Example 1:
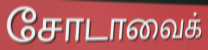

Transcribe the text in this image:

சோடாவைக்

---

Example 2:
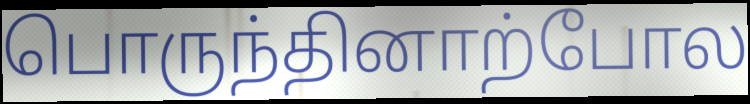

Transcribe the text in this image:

பொருந்தினாற்போல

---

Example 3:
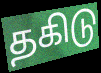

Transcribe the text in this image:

தகிடு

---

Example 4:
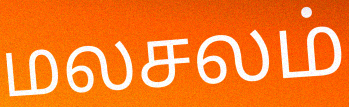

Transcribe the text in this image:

மலசலம்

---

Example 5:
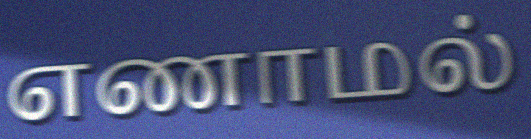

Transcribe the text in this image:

எணாமல்